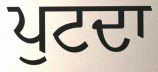
ਪੁਟਦਾ